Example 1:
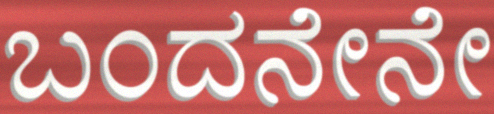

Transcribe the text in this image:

ಬಂದನೇನೇ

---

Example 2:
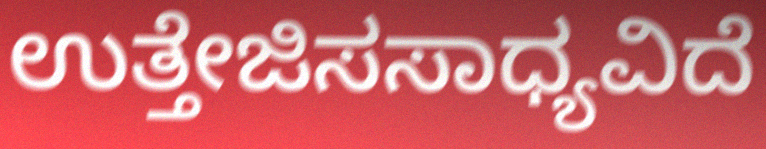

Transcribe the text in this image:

ಉತ್ತೇಜಿಸಸಾಧ್ಯವಿದೆ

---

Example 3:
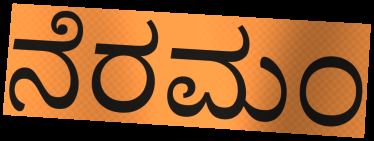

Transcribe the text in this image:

ನೆರಮಂ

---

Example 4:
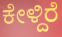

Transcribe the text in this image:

ಕೇಳ್ದಿರೆ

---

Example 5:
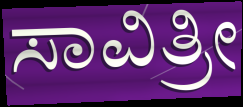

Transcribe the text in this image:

ಸಾವಿತ್ರೀ